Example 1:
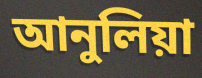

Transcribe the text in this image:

আনুলিয়া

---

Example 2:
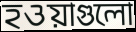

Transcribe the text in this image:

হওয়াগুলো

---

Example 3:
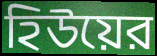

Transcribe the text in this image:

হিউয়ের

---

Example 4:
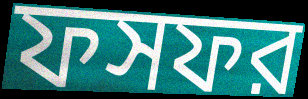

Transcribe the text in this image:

ফসফর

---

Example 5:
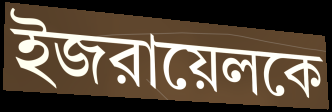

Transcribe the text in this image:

ইজরায়েলকে